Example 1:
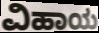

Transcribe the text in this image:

ವಿಹಾಯ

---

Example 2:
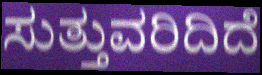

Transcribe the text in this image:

ಸುತ್ತುವರಿದಿದೆ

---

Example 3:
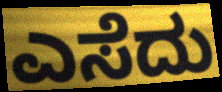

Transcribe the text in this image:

ಎಸೆದು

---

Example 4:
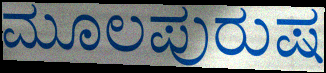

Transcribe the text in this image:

ಮೂಲಪುರುಷ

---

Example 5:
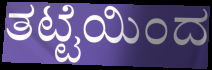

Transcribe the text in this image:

ತಟ್ಟೆಯಿಂದ